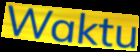
Waktu